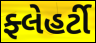
ફ્લેહર્ટી